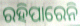
ରହିପାରେନି